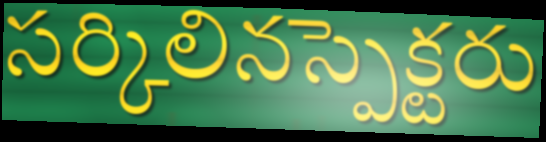
సర్కిలినస్పెక్టరు